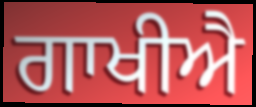
ਗਾਖੀਐ